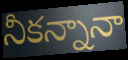
నీకన్నానా